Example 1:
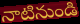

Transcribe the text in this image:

నాటినుండి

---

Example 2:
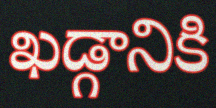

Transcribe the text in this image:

ఖడ్గానికి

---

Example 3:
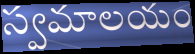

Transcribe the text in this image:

స్వమాలయం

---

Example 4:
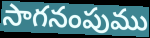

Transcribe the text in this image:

సాగనంపుము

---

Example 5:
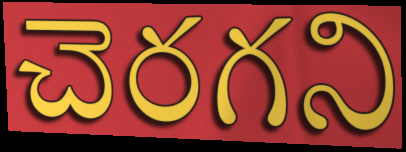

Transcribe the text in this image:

చెరగని